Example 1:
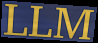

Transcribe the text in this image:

LLM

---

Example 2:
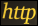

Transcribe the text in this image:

http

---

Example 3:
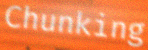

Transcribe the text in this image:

Chunking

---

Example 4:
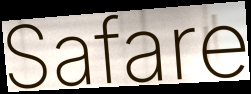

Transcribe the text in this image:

Safare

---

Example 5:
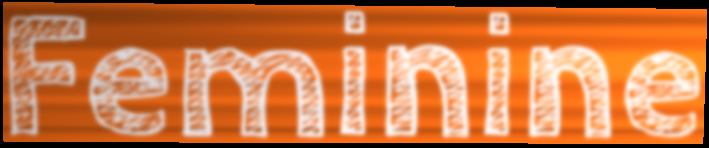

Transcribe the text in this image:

Feminine